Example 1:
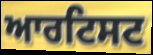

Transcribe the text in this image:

ਆਰਟਿਸਟ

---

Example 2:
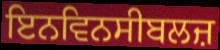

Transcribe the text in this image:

ਇਨਵਿਨਸੀਬਲਜ਼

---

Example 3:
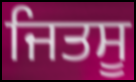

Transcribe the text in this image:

ਜਿਤਸੂ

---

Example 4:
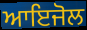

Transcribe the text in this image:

ਆਇਜੋਲ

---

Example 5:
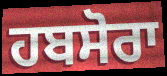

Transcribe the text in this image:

ਹਬਸੋਰਾ